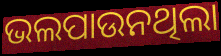
ଭଲପାଉନଥିଲା